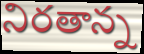
నిరతాన్న